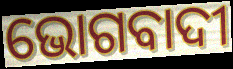
ଭୋଗବାଦୀ